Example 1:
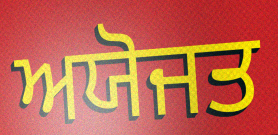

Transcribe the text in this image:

ਅਯੋਜਤ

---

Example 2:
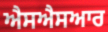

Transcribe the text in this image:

ਐਸਐਸਆਰ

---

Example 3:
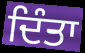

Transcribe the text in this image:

ਦਿੰਤਾ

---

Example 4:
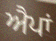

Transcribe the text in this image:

ਐਪਾਂ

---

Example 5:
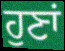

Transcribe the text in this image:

ਹੁਣਾਂ